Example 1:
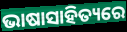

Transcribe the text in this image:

ଭାଷାସାହିତ୍ୟରେ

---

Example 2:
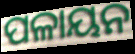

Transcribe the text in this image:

ପଳାୟନ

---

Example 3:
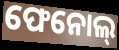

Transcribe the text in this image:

ଫେନୋଲ୍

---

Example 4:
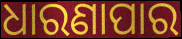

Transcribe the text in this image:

ଧାରଣାପାର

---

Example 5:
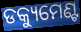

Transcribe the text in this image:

ଡକ୍ୟୁମେଣ୍ଟ